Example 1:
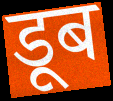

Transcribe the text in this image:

डूब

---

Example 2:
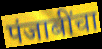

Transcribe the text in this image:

पंजाबींचा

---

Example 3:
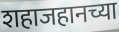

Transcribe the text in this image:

शहाजहानच्या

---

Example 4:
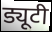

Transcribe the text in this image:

ड्यूटी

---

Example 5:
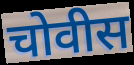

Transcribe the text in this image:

चोवीस